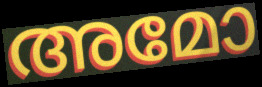
അമോ